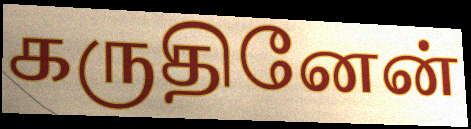
கருதினேன்